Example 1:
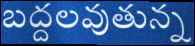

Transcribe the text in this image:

బద్దలవుతున్న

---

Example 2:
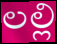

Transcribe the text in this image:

లల్లి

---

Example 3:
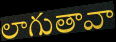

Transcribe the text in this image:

లాగుతావా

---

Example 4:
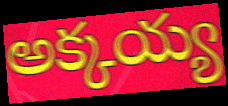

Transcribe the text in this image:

అక్కయ్య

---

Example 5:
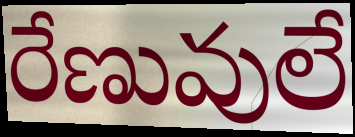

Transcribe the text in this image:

రేణువులే